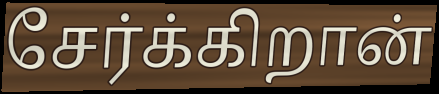
சேர்க்கிறான்